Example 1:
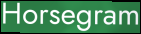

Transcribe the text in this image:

Horsegram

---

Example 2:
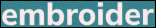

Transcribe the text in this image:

embroider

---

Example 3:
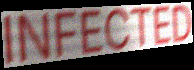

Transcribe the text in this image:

INFECTED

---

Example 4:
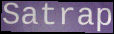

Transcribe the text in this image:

Satrap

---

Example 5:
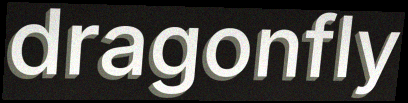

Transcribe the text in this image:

dragonfly